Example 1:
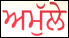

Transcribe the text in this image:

ਅਮੁੱਲੇ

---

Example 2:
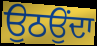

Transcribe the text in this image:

ਉਠਉਂਦਾ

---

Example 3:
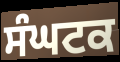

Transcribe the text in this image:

ਸੰਘਟਕ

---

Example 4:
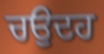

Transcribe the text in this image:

ਚਉਦਹ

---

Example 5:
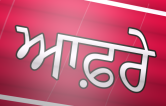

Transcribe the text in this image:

ਆਫ਼ਰੇ